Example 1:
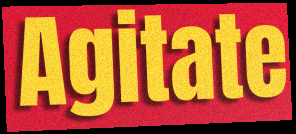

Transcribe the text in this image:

Agitate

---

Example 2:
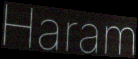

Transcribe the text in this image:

Haram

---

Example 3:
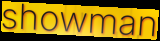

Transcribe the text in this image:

showman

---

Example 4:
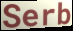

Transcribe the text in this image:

Serb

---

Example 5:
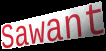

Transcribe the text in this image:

Sawant